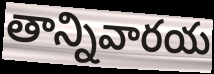
తాన్నివారయ